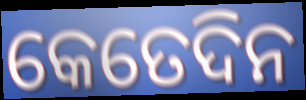
କେତେଦିନ